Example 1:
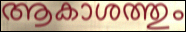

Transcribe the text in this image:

ആകാശത്തും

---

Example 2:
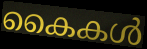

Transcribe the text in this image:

കൈകൾ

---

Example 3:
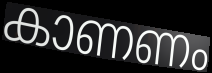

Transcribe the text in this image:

കാണണം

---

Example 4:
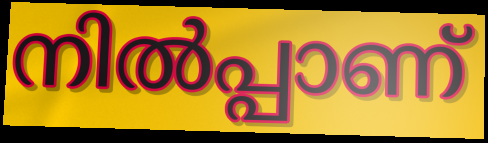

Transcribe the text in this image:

നിൽപ്പാണ്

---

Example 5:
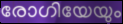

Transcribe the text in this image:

രോഗിയേയും